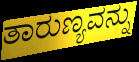
ತಾರುಣ್ಯವನ್ನು